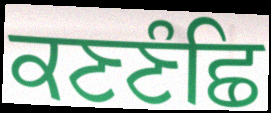
ਕਣਣੰਛਿ